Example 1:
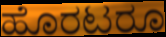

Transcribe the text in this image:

ಹೊರಟರೂ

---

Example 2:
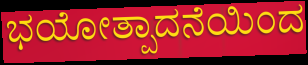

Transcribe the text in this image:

ಭಯೋತ್ಪಾದನೆಯಿಂದ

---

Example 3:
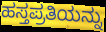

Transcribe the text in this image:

ಹಸ್ತಪ್ರತಿಯನ್ನು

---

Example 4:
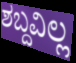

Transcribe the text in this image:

ಶಬ್ದವಿಲ್ಲ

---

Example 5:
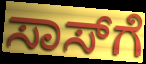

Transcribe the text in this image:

ಸಾಸ್‌ಗೆ